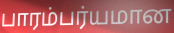
பாரம்பர்யமான